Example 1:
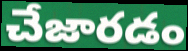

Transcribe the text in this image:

చేజారడం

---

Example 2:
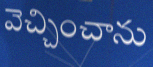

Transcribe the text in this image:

వెచ్చించాను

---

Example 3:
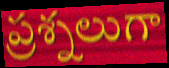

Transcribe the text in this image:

ప్రశ్నలుగా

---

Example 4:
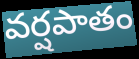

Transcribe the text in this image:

వర్షపాతం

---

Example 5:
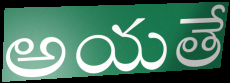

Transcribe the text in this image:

అయతే